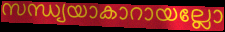
സന്ധ്യയാകാറായല്ലോ